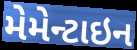
મેમેન્ટાઇન